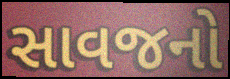
સાવજનો